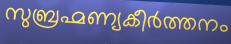
സുബ്രഹ്മണ്യകീർത്തനം